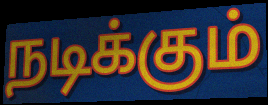
நடிக்கும்